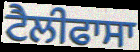
ਟੈਲੀਫਾਸਾ